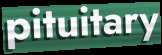
pituitary